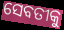
ସେବତୀକୁ